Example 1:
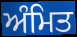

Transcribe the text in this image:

ਅੰਮਿਤ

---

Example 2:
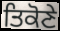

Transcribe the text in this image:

ਤਿਕੋਣੇ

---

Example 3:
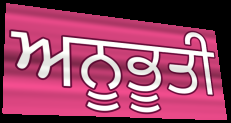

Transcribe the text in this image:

ਅਨੂਭੂਤੀ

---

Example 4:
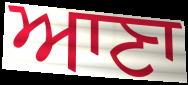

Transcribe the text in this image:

ਆਣਾ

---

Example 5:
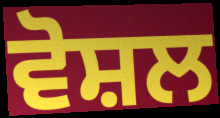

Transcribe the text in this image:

ਵੋਸ਼ਲ